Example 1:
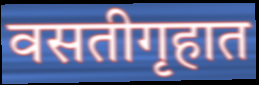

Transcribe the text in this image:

वसतीगृहात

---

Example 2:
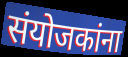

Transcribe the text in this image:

संयोजकांना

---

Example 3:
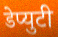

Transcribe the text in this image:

डेप्युटी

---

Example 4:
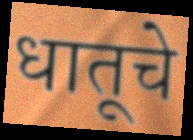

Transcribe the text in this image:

धातूचे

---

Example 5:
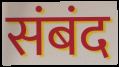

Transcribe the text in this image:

संबंद